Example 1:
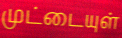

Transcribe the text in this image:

முட்டையுள்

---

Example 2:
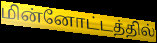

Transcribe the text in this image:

மின்னோட்டத்தில்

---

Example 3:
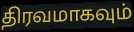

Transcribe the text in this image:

திரவமாகவும்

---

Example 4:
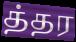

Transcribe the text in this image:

த்தர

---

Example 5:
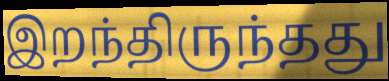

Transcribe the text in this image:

இறந்திருந்தது